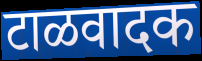
टाळवादक